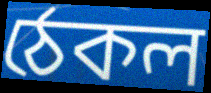
ঠেকল